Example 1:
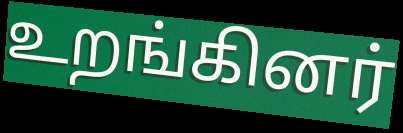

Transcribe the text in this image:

உறங்கினர்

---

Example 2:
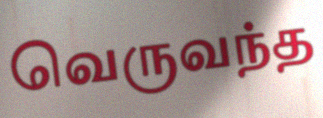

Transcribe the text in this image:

வெருவந்த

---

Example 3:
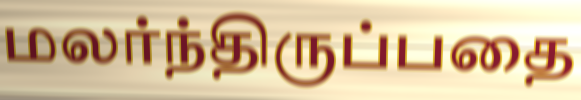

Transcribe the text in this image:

மலர்ந்திருப்பதை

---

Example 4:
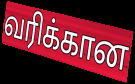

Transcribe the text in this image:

வரிக்கான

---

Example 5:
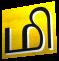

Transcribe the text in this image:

மி